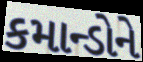
કમાન્ડોને